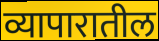
व्यापारातील